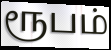
ரூபம்